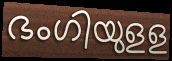
ഭംഗിയുളള